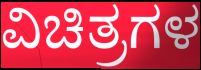
ವಿಚಿತ್ರಗಳ